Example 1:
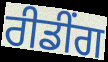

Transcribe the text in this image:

ਰੀਡੀਂਗ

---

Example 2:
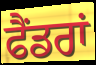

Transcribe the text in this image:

ਫੈਂਡਰਾਂ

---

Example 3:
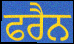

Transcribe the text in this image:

ਫਰੈਨ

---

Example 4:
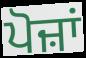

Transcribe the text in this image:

ਪੋਜ਼ਾਂ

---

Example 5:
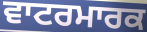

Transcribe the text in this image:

ਵਾਟਰਮਾਰਕ